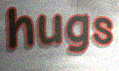
hugs